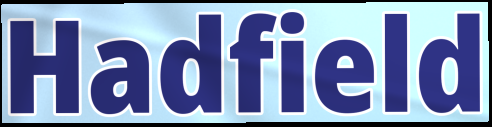
Hadfield